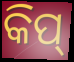
କିପ୍